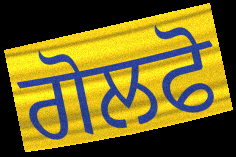
ਗੋਲਫੋ